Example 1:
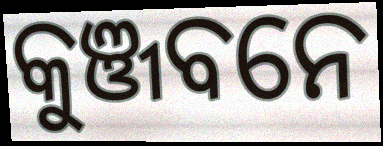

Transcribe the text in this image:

କୁଞ୍ଜବନେ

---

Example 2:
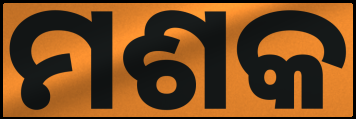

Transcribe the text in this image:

ମଶକ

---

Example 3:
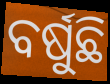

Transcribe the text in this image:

ବର୍ଷୁଛି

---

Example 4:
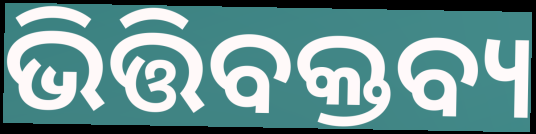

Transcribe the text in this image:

ଭିତ୍ତିବକ୍ତବ୍ୟ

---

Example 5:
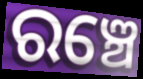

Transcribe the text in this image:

ରଞ୍ଚେ